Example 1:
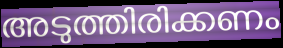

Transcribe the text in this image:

അടുത്തിരിക്കണം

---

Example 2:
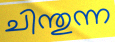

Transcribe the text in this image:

ചിന്തുന്ന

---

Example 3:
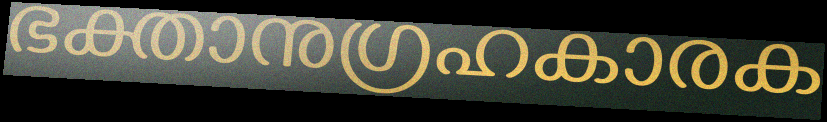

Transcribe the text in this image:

ഭക്താനുഗ്രഹകാരക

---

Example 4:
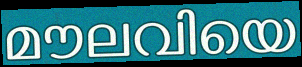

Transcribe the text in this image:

മൗലവിയെ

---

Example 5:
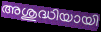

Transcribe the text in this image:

അശുദ്ധിയായി